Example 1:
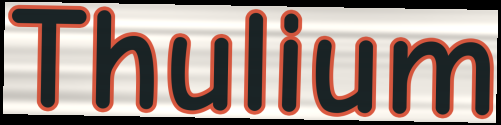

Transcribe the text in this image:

Thulium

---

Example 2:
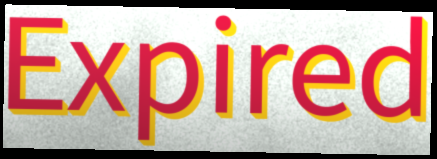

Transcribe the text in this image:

Expired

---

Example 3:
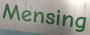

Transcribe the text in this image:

Mensing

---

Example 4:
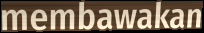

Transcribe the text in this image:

membawakan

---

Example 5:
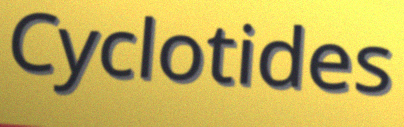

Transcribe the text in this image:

Cyclotides